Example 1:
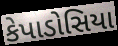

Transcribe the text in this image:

કેપાડોસિયા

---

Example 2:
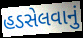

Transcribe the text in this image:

હડસેલવાનું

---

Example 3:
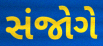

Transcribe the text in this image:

સંજોગે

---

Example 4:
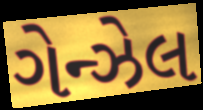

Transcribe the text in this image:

ગેન્ઝેલ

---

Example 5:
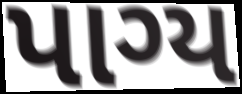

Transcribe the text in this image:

પાગ્ય